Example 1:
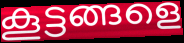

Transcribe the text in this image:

കൂട്ടങ്ങളെ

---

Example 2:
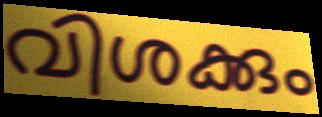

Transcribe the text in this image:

വിശക്കും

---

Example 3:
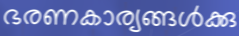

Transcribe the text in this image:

ഭരണകാര്യങ്ങൾക്കു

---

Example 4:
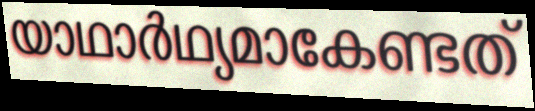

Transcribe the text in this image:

യാഥാർഥ്യമാകേണ്ടത്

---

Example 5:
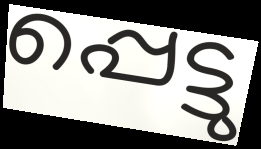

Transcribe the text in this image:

പ്പെട്ടു